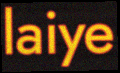
laiye